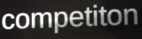
competiton